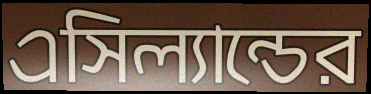
এসিল্যান্ডের